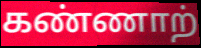
கண்ணாற்